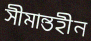
সীমান্তহীন